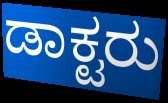
ಡಾಕ್ಟರು